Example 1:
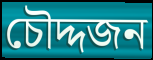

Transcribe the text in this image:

চৌদ্দজন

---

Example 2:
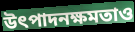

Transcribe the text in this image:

উৎপাদনক্ষমতাও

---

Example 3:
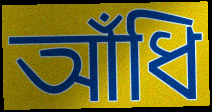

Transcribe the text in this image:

আঁধি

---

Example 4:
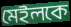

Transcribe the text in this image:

মেইলকে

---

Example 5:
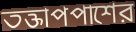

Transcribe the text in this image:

তক্তাপপাশের